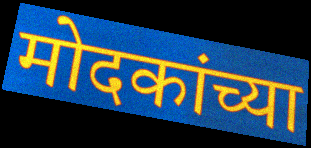
मोदकांच्या